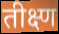
तीक्ष्ण